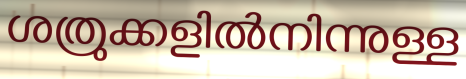
ശത്രുക്കളിൽനിന്നുള്ള